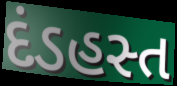
દંડહસ્ત